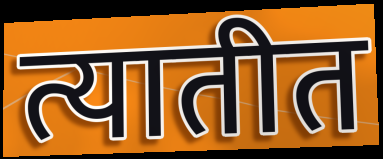
त्यातीत